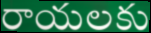
రాయలకు